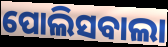
ପୋଲିସବାଲା